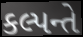
કલ્પન્તે